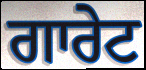
ਗਾਰੇਟ